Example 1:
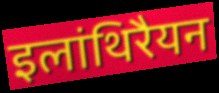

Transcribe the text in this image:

इलांथिरैयन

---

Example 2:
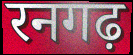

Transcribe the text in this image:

रनगढ़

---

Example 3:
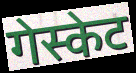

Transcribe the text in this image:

गेस्केट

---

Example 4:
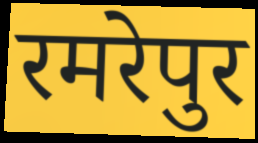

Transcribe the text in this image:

रमरेपुर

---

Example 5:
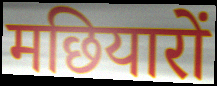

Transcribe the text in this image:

मछियारों